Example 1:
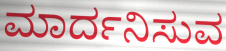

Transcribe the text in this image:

ಮಾರ್ದನಿಸುವ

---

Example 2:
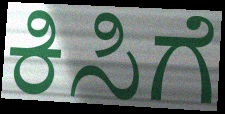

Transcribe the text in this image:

ಕಿಸಿಗೆ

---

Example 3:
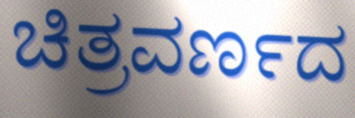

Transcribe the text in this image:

ಚಿತ್ರವರ್ಣದ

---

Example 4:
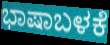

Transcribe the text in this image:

ಭಾಷಾಬಳಕೆ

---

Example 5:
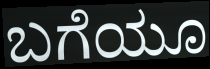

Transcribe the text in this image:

ಬಗೆಯೂ